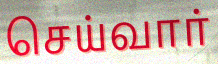
செய்வார்